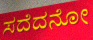
ಸದೆದನೋ